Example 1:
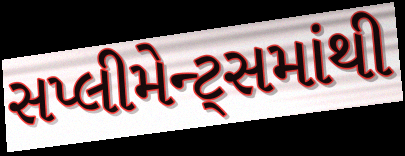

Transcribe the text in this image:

સપ્લીમેન્ટ્સમાંથી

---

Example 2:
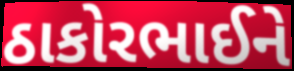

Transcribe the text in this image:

ઠાકોરભાઈને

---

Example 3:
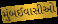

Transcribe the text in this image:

મુંબઈવાસીઓ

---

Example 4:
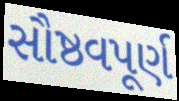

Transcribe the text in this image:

સૌષ્ઠવપૂર્ણ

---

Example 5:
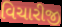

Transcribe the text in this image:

વિચારીજી